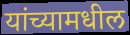
यांच्यामधील